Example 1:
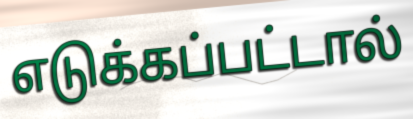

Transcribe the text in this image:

எடுக்கப்பட்டால்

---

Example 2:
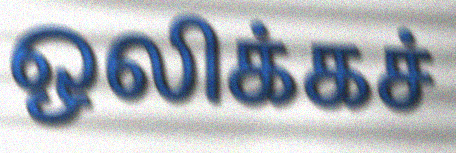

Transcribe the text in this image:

ஒலிக்கச்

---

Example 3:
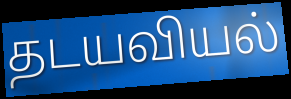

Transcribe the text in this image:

தடயவியல்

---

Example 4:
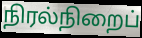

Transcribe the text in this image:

நிரல்நிறைப்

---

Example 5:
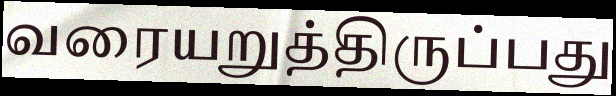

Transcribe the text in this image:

வரையறுத்திருப்பது